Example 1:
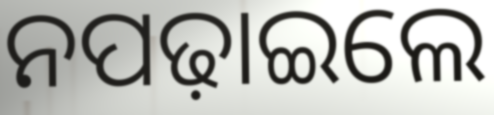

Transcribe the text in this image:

ନପଢ଼ାଇଲେ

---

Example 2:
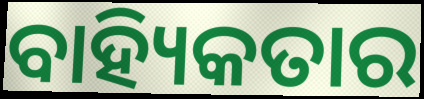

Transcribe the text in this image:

ବାହ୍ୟିକତାର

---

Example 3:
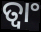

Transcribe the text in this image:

ତ୍ଵାଂ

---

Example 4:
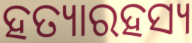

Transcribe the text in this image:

ହତ୍ୟାରହସ୍ୟ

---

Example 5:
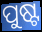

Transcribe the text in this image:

ପୁଷ୍ଟ